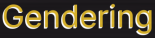
Gendering